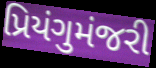
પ્રિયંગુમંજરી